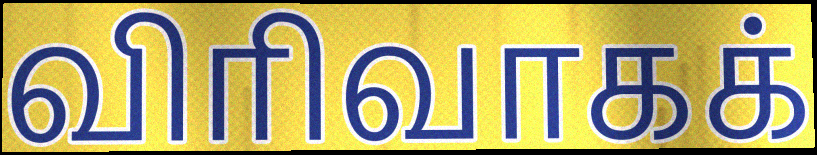
விரிவாகக்